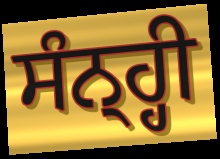
ਸੰਨ੍ਹ੍ਹੀ